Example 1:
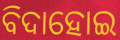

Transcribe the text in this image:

ବିଦାହୋଇ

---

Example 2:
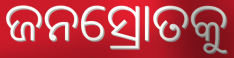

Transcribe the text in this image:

ଜନସ୍ରୋତକୁ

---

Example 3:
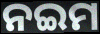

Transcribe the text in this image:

ନଇମ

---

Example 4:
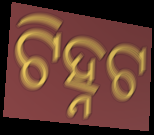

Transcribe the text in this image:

ଟିହ୍ନଟ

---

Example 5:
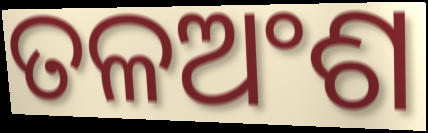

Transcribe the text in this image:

ତଳଅଂଶ